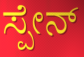
ಸ್ಪೇನ್